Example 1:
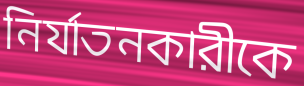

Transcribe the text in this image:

নির্যাতনকারীকে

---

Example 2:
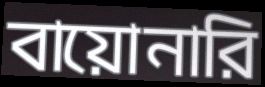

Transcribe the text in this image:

বায়োনারি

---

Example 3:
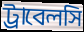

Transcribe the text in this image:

ট্রাবেলসি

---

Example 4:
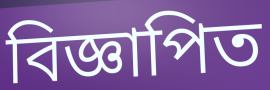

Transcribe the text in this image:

বিজ্ঞাপিত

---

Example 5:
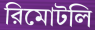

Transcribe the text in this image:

রিমোটলি